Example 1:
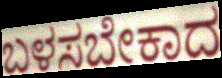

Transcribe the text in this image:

ಬಳಸಬೇಕಾದ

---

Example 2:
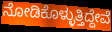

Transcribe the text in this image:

ನೋಡಿಕೊಳ್ಳುತ್ತಿದ್ದೇವೆ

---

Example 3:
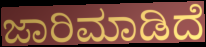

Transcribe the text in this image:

ಜಾರಿಮಾಡಿದೆ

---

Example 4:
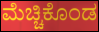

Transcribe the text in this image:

ಮೆಚ್ಚಿಕೊಂಡ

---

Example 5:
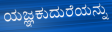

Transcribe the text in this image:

ಯಜ್ಞಕುದುರೆಯನ್ನು